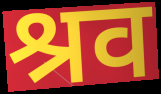
श्रव